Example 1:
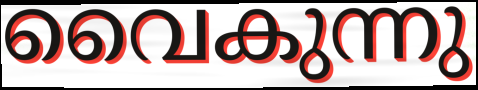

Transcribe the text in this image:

വൈകുന്നു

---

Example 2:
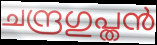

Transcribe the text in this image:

ചന്ദ്രഗുപ്തൻ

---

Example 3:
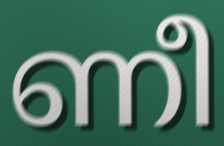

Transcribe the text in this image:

ണീ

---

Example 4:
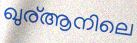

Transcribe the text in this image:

ഖുര്ആനിലെ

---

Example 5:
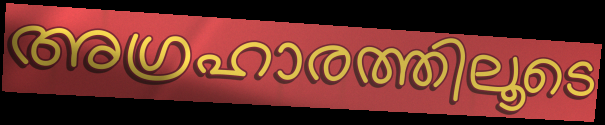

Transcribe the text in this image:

അഗ്രഹാരത്തിലൂടെ